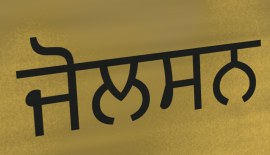
ਜੋਲਸਨ